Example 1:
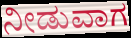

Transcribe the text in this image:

ನೀಡುವಾಗ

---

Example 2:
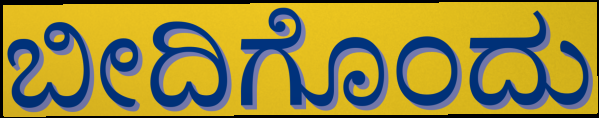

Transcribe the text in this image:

ಬೀದಿಗೊಂದು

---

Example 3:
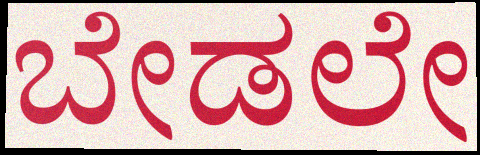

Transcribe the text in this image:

ಬೇಡಲೇ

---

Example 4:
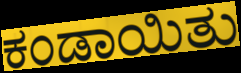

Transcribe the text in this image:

ಕಂಡಾಯಿತು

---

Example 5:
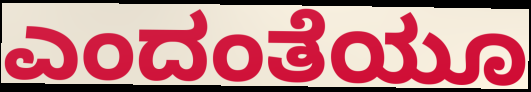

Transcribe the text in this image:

ಎಂದಂತೆಯೂ